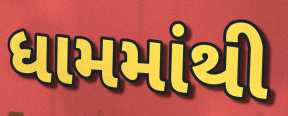
ધામમાંથી